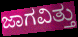
ಜಾಗವಿತ್ತು